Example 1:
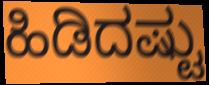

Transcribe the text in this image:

ಹಿಡಿದಷ್ಟು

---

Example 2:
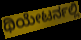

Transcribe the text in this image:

ಥಿಯೇಟರ್ನಲ್ಲಿ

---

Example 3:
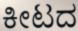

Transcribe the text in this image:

ಕೀಟದ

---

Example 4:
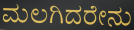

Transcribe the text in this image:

ಮಲಗಿದರೇನು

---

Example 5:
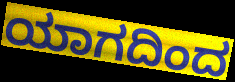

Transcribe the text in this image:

ಯಾಗದಿಂದ